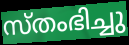
സ്തംഭിച്ചു